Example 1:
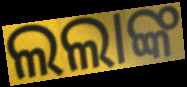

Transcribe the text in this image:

ଲଲାଙ୍କ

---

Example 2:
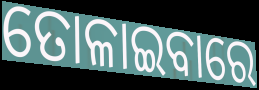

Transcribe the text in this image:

ତୋଳାଇବାରେ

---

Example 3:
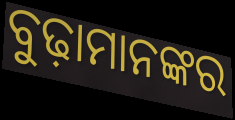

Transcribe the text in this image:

ବୁଢ଼ାମାନଙ୍କର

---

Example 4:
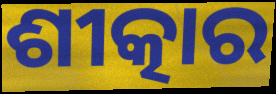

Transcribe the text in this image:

ଶୀତ୍କାର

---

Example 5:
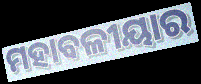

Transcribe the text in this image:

ମହାବଳୀୟାର